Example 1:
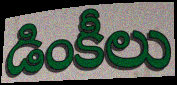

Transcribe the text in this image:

డింకీలు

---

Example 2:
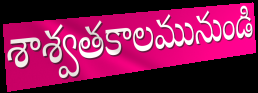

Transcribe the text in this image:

శాశ్వతకాలమునుండి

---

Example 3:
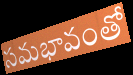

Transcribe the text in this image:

సమభావంతో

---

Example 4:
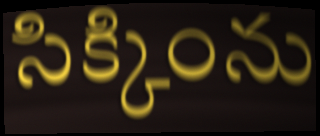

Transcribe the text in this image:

సిక్కింను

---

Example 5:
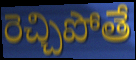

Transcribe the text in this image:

రెచ్చిపోతే